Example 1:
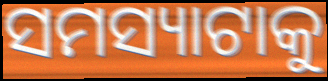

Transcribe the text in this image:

ସମସ୍ୟାଟାକୁ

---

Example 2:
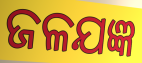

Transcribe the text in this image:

ଜଳଯଜ୍ଞ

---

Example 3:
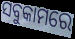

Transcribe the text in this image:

ସବୁକାମରେ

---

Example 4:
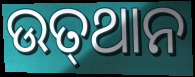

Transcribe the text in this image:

ଉତ୍‍ଥାନ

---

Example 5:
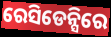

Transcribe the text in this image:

ରେସିଡେନ୍ସିରେ